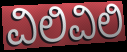
ವಿಲಿವಿಲಿ